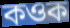
কওক